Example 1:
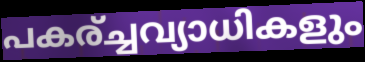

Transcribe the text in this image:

പകര്ച്ചവ്യാധികളും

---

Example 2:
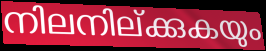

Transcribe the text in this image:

നിലനില്ക്കുകയും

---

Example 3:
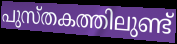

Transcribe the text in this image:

പുസ്തകത്തിലുണ്ട്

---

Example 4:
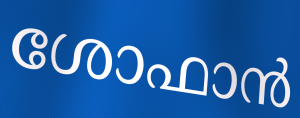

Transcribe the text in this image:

ശോഫാൻ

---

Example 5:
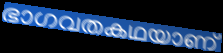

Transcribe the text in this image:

ഭാഗവതകഥയാണ്